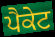
ਪੈਕੇਟ